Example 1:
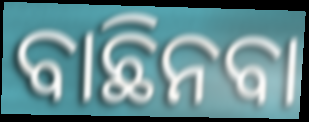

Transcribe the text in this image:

ବାଛିନବା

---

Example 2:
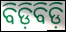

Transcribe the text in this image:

ବିଡ଼ିବିଡ଼ି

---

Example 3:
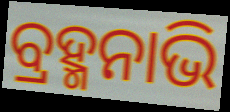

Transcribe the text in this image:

ବ୍ରହ୍ମନାଭି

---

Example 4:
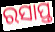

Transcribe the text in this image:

ରସାପ୍ତ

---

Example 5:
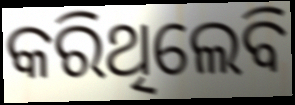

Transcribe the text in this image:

କରିଥିଲେବି